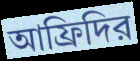
আফ্রিদির